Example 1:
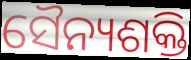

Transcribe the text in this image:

ସୈନ୍ୟଶକ୍ତି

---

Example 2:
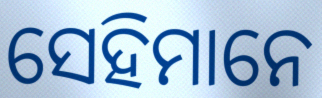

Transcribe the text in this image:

ସେହିମାନେ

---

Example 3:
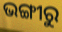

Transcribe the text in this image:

ଭଙ୍ଗୀରୁ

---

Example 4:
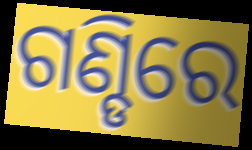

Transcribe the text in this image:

ଗଣ୍ଡିରେ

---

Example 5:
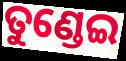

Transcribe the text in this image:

ତୁଣ୍ଡେଇ